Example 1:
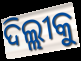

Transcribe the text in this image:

ଦିଲ୍ଲୀକୁ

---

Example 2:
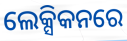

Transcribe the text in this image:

ଲେକ୍ସିକନରେ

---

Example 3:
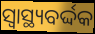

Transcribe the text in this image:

ସ୍ଵାସ୍ଥ୍ୟବର୍ଦ୍ଦକ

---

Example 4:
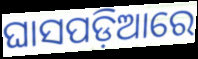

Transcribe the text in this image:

ଘାସପଡ଼ିଆରେ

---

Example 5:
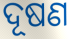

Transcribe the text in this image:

ଦୂଷଣ